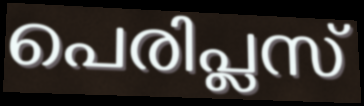
പെരിപ്ലസ്